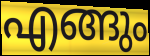
എങ്ങും